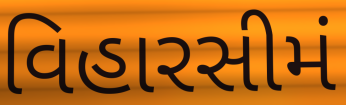
વિહારસીમં